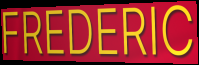
FREDERIC